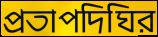
প্রতাপদিঘির